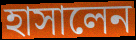
হাসালেন